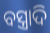
ବସ୍ତ୍ରାଦି